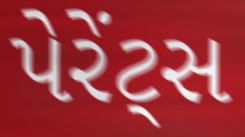
પેરેંટ્સ